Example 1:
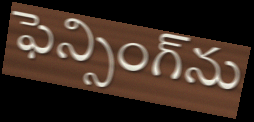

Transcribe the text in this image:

ఫెన్సింగ్‌ను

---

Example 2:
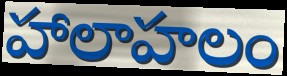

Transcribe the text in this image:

హాలాహలం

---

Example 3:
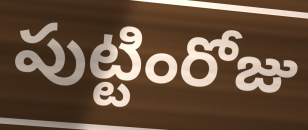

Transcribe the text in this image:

పుట్టింరోజు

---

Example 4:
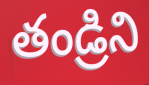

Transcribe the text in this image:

తండ్రిని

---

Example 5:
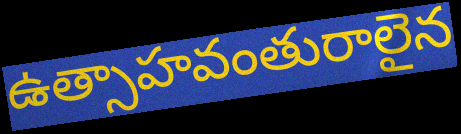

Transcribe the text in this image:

ఉత్సాహవంతురాలైన